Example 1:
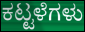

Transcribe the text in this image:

ಕಟ್ಟಳೆಗಳು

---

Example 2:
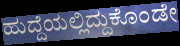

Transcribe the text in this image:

ಹುದ್ದೆಯಲ್ಲಿದ್ದುಕೊಂಡೇ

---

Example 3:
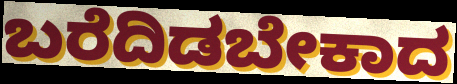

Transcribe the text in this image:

ಬರೆದಿಡಬೇಕಾದ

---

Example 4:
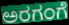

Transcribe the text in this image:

ಅರಗಂಗೆ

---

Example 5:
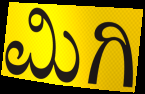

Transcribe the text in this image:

ಮಿಗಿ